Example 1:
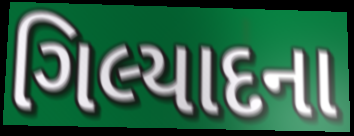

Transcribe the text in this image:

ગિલ્યાદના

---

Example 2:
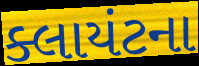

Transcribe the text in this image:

ક્લાયંટના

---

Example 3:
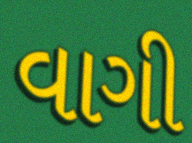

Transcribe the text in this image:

વાગી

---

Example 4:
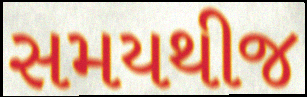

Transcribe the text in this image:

સમયથીજ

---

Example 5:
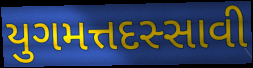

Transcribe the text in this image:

યુગમત્તદસ્સાવી